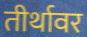
तीर्थावर